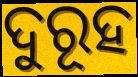
ଦୁରୂହ